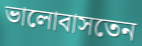
ভালোবাসতেন